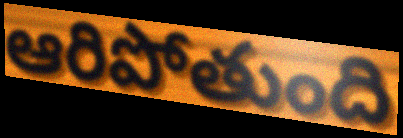
ఆరిపోతుంది